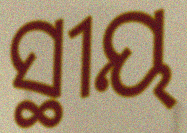
ସ୍ଥୀୟ